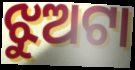
ଝୁଅଟା